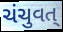
ચંચુવત્